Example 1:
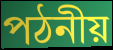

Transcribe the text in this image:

পঠনীয়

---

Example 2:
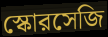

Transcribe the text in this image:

স্কোরসেজি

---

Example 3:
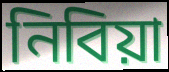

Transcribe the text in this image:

নিবিয়া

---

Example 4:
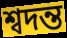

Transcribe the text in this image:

শ্বদন্ত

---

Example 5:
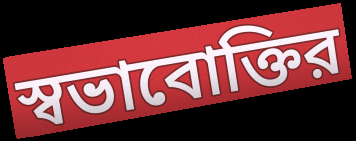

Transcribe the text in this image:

স্বভাবোক্তির